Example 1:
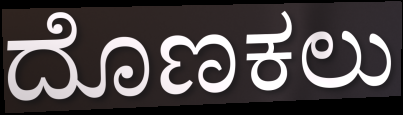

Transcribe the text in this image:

ದೊಣಕಲು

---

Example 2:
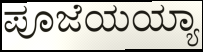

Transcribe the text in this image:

ಪೂಜೆಯಯ್ಯಾ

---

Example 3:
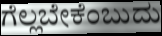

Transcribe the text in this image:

ಗೆಲ್ಲಬೇಕೆಂಬುದು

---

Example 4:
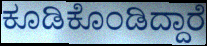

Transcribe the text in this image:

ಕೂಡಿಕೊಂಡಿದ್ದಾರೆ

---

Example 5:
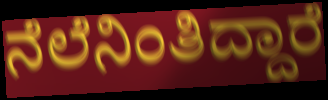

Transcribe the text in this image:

ನೆಲೆನಿಂತಿದ್ದಾರೆ